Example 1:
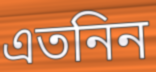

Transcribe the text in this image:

এতনিন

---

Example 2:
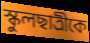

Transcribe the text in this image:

স্কুলছাত্রীকে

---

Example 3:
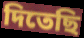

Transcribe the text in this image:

দিতেছি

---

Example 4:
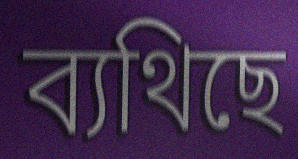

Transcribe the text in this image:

ব্যথিছে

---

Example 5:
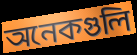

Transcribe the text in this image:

অনেকগুলি